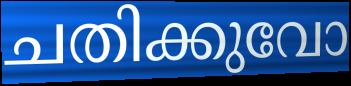
ചതിക്കുവോ